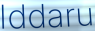
Iddaru